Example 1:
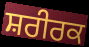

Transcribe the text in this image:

ਸ਼ਰੀਰਕ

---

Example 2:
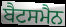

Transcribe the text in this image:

ਬੈਟਸਮੈਨ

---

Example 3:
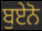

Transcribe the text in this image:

ਬੁਏਨੋ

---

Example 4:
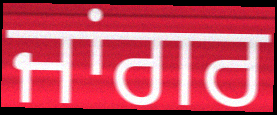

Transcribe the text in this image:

ਜਾਂਗਰ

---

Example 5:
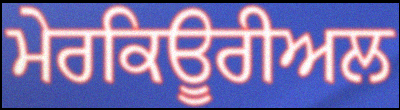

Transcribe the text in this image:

ਮੇਰਕਿਊਰੀਅਲ